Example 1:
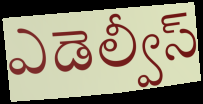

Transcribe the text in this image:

ఎడెల్వీస్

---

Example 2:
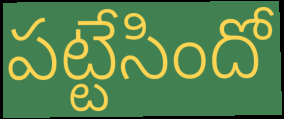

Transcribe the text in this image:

పట్టేసిందో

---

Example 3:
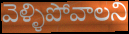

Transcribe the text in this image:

వెళ్ళిపోవాలని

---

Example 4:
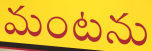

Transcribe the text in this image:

మంటను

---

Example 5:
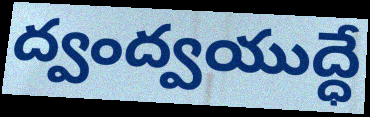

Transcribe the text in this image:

ద్వంద్వయుద్ధే